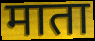
माता